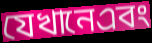
যেখানেএবং